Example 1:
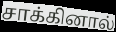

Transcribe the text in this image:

சாக்கினால்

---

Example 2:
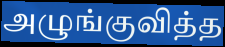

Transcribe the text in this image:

அழுங்குவித்த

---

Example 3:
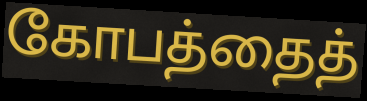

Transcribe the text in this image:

கோபத்தைத்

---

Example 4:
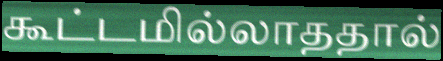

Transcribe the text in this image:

கூட்டமில்லாததால்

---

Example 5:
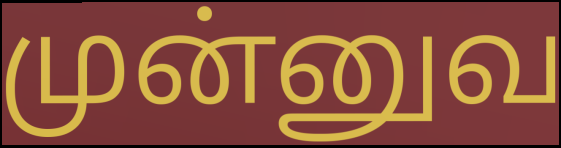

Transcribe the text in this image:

முன்னுவ